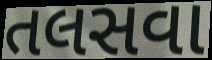
તલસવા